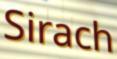
Sirach